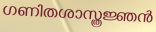
ഗണിതശാസ്ത്രജ്ഞൻ